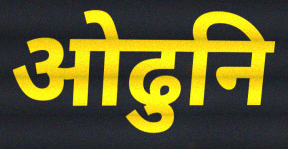
ओढुनि